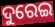
ଦୁରେଇ